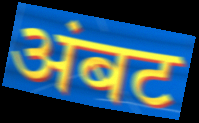
अंबट